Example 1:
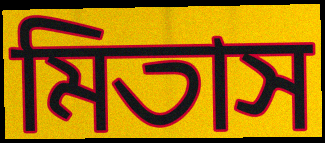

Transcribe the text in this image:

মিতাস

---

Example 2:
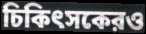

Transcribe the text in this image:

চিকিৎসকেরও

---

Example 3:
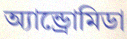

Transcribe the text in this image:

অ্যান্ড্রোমিডা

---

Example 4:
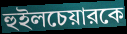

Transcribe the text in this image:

হুইলচেয়ারকে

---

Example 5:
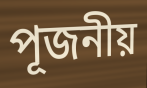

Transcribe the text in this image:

পূজনীয়